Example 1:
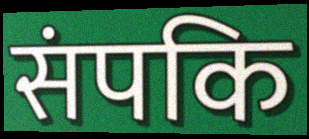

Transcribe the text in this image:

संपकि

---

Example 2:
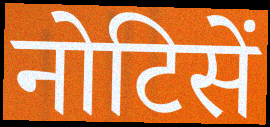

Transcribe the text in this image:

नोटिसें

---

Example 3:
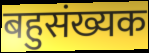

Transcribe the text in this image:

बहुसंख्यक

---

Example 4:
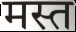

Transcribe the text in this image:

मस्‍त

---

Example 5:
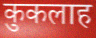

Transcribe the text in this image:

कुकलाह